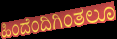
ಹಿಂದೆಂದಿಗಿಂತಲೂ